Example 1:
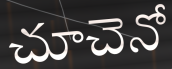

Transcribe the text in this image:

చూచెనో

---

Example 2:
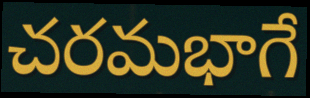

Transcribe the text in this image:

చరమభాగే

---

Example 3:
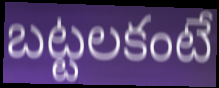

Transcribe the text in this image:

బట్టలకంటే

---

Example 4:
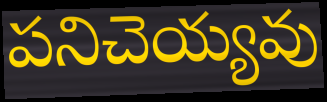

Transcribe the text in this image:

పనిచెయ్యవు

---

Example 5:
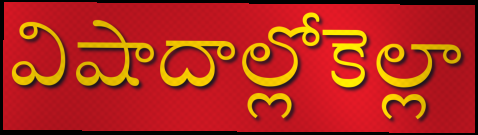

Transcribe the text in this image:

విషాదాల్లోకెల్లా